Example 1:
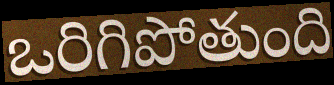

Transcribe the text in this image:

ఒరిగిపోతుంది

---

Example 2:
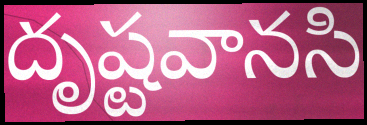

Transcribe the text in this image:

దృష్టవానసి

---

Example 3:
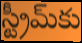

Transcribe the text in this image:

స్ట్రీమ్‌కు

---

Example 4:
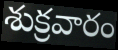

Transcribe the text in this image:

శుక్రవారం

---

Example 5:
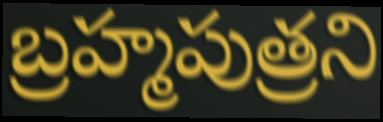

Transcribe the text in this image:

బ్రహ్మపుత్రని